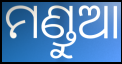
ମଣ୍ଡୁଆ